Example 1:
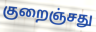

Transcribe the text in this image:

குறைஞ்சது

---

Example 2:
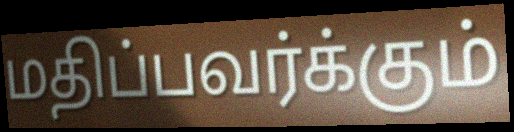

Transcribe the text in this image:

மதிப்பவர்க்கும்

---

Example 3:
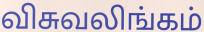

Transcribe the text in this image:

விசுவலிங்கம்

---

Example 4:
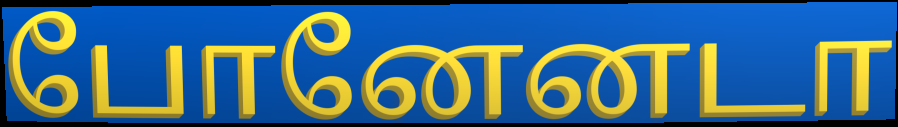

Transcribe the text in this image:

போனேனடா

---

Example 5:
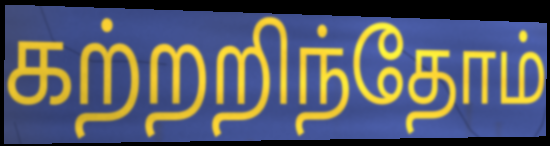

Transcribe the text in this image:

கற்றறிந்தோம்